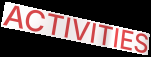
ACTIVITIES